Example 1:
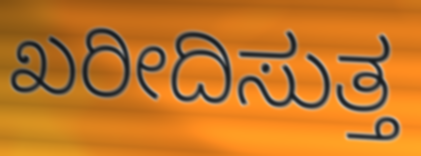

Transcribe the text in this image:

ಖರೀದಿಸುತ್ತ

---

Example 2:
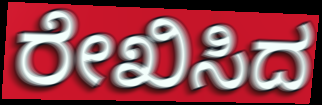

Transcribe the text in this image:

ರೇಖಿಸಿದ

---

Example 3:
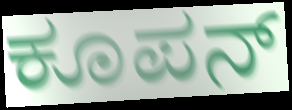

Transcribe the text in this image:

ಕೂಪನ್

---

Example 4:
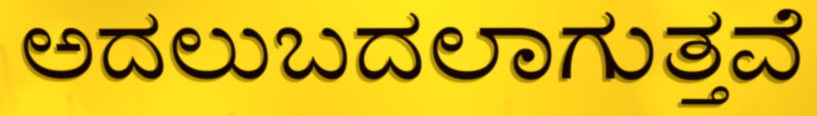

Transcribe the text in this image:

ಅದಲುಬದಲಾಗುತ್ತವೆ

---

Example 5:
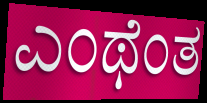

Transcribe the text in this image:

ಎಂಥೆಂತ